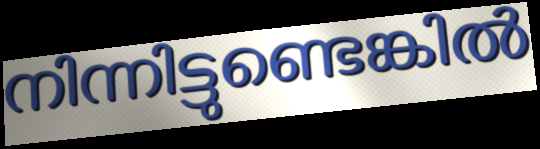
നിന്നിട്ടുണ്ടെങ്കിൽ